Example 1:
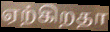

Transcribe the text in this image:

ஏற்கிறதா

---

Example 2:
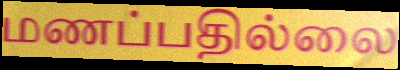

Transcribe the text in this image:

மணப்பதில்லை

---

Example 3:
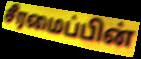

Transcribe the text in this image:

சீரமைப்பின்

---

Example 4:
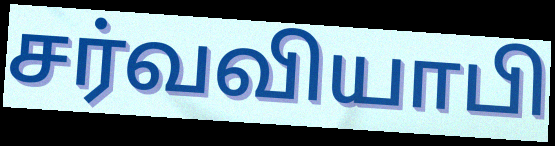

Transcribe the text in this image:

சர்வவியாபி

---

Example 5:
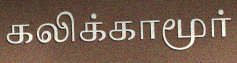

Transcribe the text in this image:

கலிக்காமூர்